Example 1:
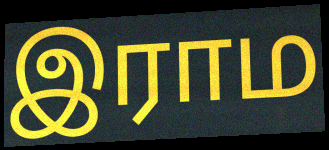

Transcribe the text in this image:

இராம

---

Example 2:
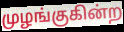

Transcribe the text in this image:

முழங்குகின்ற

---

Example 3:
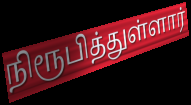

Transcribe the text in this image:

நிரூபித்துள்ளார்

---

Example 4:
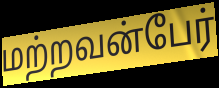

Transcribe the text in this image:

மற்றவன்பேர்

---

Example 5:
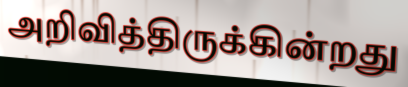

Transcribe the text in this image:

அறிவித்திருக்கின்றது